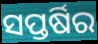
ସପ୍ତର୍ଷିର